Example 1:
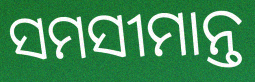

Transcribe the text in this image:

ସମସୀମାନ୍ତ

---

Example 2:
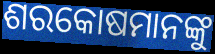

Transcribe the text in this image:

ଶରକୋଷମାନଙ୍କୁ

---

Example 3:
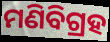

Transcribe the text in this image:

ମଣିବିଗ୍ରହ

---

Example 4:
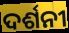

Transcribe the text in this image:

ଦର୍ଶନୀ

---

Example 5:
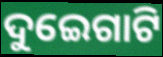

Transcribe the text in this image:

ଦୁଇେଗାଟି